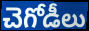
చెగోడీలు